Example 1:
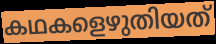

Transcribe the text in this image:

കഥകളെഴുതിയത്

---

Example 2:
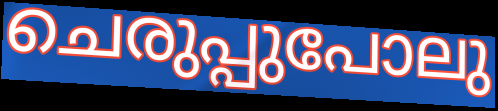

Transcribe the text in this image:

ചെരുപ്പുപോലു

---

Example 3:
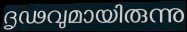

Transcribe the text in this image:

ദൃഢവുമായിരുന്നു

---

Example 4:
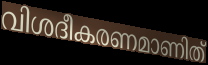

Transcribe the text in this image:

വിശദീകരണമാണിത്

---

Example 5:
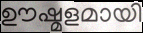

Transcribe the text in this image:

ഊഷ്മളമായി